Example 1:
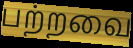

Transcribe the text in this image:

பற்றவை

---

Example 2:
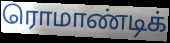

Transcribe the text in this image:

ரொமாண்டிக்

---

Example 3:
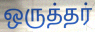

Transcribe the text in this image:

ஒருத்தர்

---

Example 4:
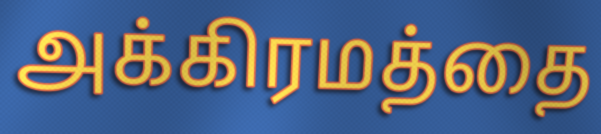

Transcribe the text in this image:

அக்கிரமத்தை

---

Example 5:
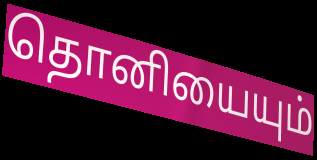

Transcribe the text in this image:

தொனியையும்